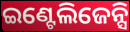
ଇଣ୍ଟେଲିଜେନ୍ସି